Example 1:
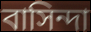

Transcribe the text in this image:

বাসিন্দা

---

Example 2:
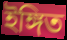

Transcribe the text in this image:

ইঙ্গিত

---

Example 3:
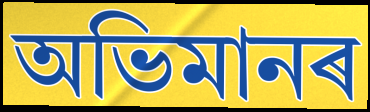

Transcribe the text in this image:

অভিমানৰ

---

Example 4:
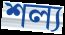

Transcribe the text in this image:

শল্য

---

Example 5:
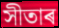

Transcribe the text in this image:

সীতাৰ